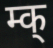
म्क्